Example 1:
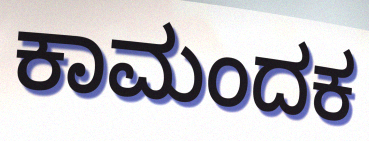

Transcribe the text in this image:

ಕಾಮಂದಕ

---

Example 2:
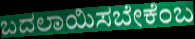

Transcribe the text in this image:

ಬದಲಾಯಿಸಬೇಕೆಂಬ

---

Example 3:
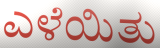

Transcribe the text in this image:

ಎಳೆಯಿತು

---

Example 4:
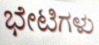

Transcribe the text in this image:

ಭೇಟಿಗಳು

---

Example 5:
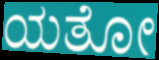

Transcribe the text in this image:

ಯತೋ